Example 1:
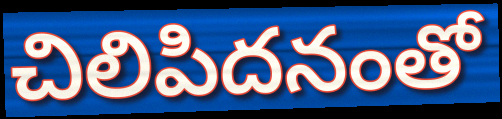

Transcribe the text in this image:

చిలిపిదనంతో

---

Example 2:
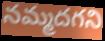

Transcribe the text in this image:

నమ్మదగని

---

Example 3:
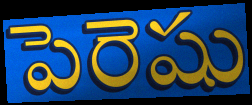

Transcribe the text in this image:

పెరెషు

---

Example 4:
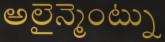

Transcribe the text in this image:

అలైన్మెంట్ను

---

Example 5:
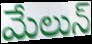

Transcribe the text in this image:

మేలున్